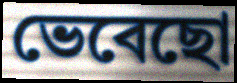
ভেবেছো